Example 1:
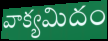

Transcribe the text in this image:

వాక్యమిదం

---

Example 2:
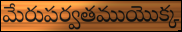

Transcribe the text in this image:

మేరుపర్వతముయొక్క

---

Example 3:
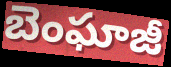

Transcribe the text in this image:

బెంఘాజీ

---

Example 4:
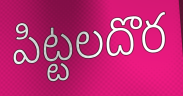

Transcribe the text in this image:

పిట్టలదొర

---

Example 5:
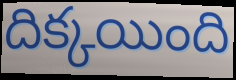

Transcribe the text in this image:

దిక్కయింది